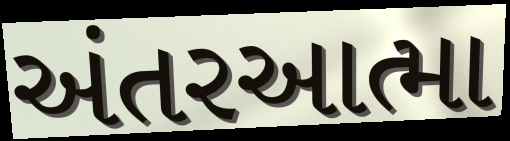
અંતરઆત્મા